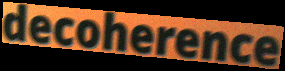
decoherence